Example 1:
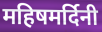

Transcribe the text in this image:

महिषमर्दिनी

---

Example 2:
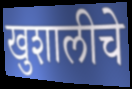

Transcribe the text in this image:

खुशालीचे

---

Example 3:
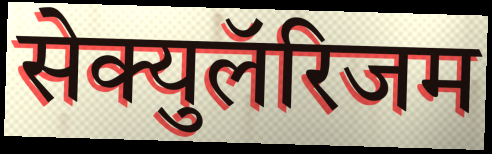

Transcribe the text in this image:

सेक्युलॅरिजम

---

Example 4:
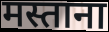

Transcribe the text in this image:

मस्ताना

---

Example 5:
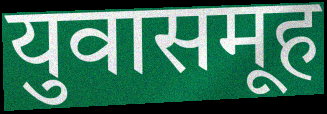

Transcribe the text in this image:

युवासमूह